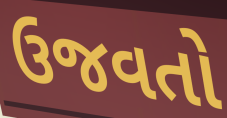
ઉજવતો